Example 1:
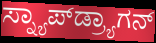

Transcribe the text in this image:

ಸ್ನ್ಯಾಪ್‌ಡ್ರ್ಯಾಗನ್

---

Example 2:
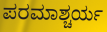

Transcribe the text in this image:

ಪರಮಾಶ್ಚರ್ಯ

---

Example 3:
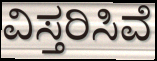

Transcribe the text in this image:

ವಿಸ್ತರಿಸಿವೆ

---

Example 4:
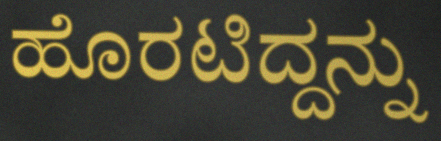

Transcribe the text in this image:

ಹೊರಟಿದ್ದನ್ನು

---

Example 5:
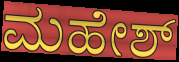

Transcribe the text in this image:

ಮಹೇಶ್